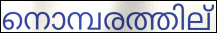
നൊമ്പരത്തില്